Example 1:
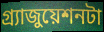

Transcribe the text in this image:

গ্র্যাজুয়েশনটা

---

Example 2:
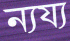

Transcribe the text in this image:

ন্যয্য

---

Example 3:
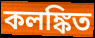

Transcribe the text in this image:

কলঙ্কিত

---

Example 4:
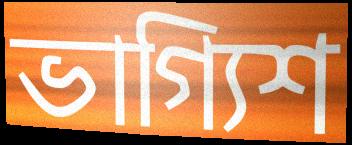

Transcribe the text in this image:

ভাগ্যিশ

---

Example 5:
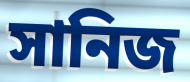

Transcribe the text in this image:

সানিজ